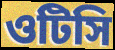
ওটিসি